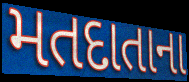
મતદાતાના